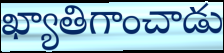
ఖ్యాతిగాంచాడు